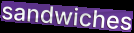
sandwiches